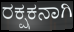
ರಕ್ಷಕನಾಗಿ